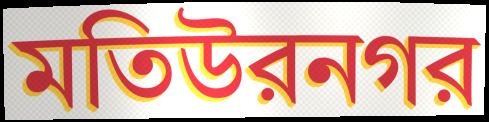
মতিউরনগর